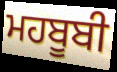
ਮਹਬੂਬੀ